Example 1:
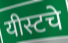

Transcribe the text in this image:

यीस्टचे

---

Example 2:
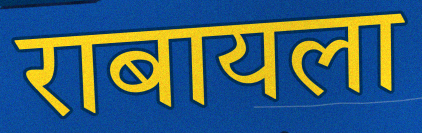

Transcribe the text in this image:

राबायला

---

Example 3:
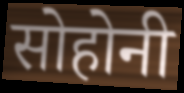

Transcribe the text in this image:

सोहोनी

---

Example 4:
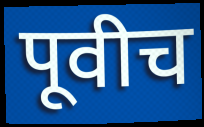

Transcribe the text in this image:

पूवीच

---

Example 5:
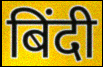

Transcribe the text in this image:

बिंदी